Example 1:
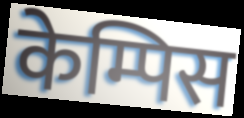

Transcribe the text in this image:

केम्पिस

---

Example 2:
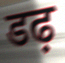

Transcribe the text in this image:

डढ़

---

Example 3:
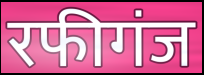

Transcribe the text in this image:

रफीगंज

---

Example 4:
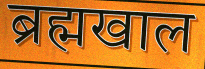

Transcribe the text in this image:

ब्रह्मखाल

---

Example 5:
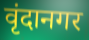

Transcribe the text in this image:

वृंदानगर